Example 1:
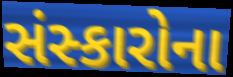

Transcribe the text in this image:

સંસ્કારોના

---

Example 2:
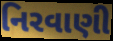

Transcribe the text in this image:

નિરવાણી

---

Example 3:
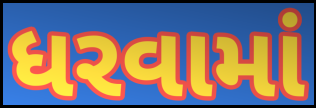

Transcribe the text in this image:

ધરવામાં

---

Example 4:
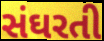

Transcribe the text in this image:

સંઘરતી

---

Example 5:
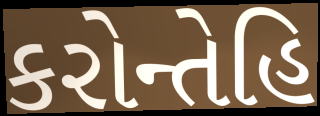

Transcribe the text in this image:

કરોન્તેહિ